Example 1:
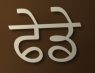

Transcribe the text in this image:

ਫੇਡੇ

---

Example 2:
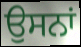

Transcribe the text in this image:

ਉਸਨਾਂ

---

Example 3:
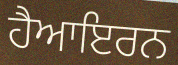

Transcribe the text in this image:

ਹੈਆਇਰਨ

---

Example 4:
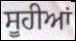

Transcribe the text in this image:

ਸੂਹੀਆਂ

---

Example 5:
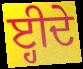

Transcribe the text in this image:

ੲ੍ਹੀਦੇ